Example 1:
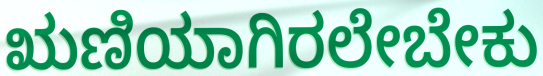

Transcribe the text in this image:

ಋಣಿಯಾಗಿರಲೇಬೇಕು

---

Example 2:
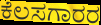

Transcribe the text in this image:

ಕೆಲಸಗಾರರ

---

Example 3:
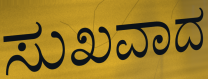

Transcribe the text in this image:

ಸುಖವಾದ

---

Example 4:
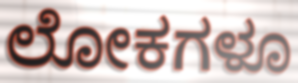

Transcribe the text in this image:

ಲೋಕಗಳೂ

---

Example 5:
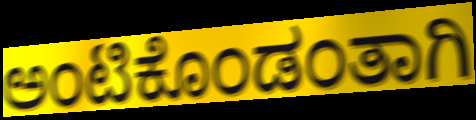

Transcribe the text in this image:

ಅಂಟಿಕೊಂಡಂತಾಗಿ